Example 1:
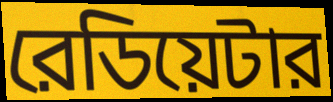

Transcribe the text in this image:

রেডিয়েটার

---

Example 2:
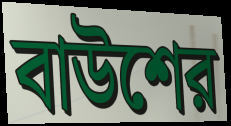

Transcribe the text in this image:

বাউশের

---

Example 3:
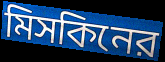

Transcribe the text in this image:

মিসকিনের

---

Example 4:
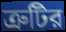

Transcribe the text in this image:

ত্রুটির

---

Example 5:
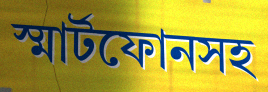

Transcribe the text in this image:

স্মার্টফোনসহ